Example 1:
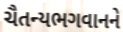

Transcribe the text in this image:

ચૈતન્યભગવાનને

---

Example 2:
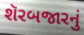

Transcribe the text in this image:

શૅરબજારનું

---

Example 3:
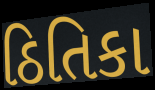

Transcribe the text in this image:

ઠિતિકા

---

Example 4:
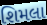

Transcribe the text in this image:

શિમલા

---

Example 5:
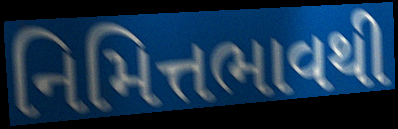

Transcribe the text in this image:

નિમિત્તભાવથી